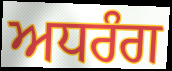
ਅਧਰੰਗ